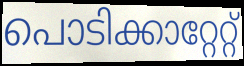
പൊടിക്കാറ്റേറ്റ്